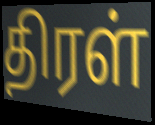
திரள்